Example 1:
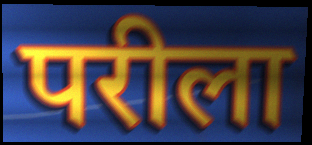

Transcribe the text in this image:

परीला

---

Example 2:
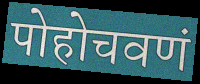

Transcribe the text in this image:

पोहोचवणं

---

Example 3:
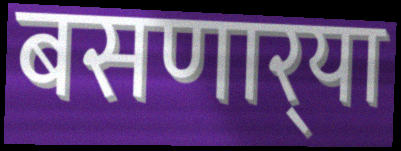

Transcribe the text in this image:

बसणार्‍या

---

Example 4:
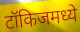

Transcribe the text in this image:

टॉकिजमध्ये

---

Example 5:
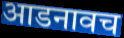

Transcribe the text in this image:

आडनावच